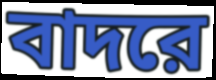
বাদরে